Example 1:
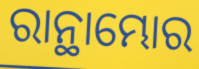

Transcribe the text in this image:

ରାନ୍ଥାମ୍ଭୋର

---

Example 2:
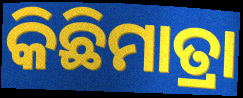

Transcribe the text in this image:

କିଛିମାତ୍ରା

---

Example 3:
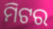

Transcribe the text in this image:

ମିଟର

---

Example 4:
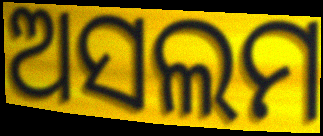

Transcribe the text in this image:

ଅସଲମ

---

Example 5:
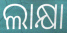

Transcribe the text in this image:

ଲାକ୍ଷା